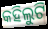
କହିଲୁଟି